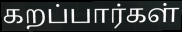
கறப்பார்கள்